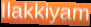
Ilakkiyam